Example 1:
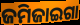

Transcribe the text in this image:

ଜମିଜାଇଗା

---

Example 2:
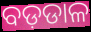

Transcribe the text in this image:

ବଡ଼ଡାଳ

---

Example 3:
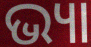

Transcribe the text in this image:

ଭ୍ୟା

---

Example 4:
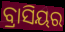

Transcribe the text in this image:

ବ୍ରାସିୟର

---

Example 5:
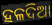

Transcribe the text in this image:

ହଳଦିଆ